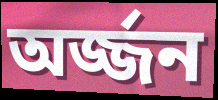
অর্জ্জন